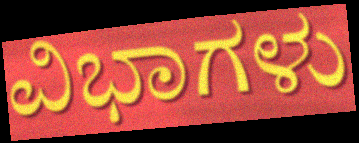
ವಿಭಾಗಳು